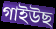
গাইউছ